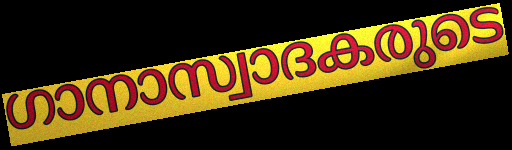
ഗാനാസ്വാദകരുടെ